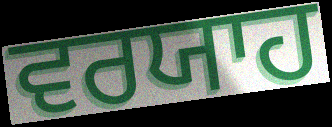
ਵਰਯਾਹ